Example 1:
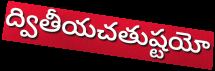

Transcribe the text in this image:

ద్వితీయచతుష్టయో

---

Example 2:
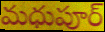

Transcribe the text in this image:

మధుపూర్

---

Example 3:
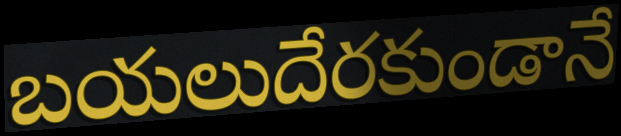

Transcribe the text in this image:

బయలుదేరకుండానే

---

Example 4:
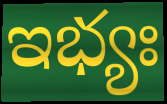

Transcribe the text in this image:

ఇభ్యః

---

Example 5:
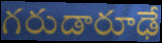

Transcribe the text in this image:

గరుడారూఢే